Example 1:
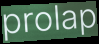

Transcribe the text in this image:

prolap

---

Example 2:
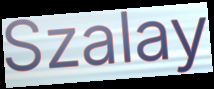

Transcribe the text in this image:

Szalay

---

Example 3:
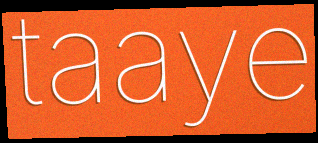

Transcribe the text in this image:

taaye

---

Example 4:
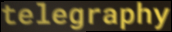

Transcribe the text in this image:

telegraphy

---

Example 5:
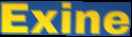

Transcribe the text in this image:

Exine